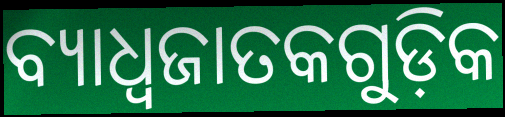
ବ୍ୟାଧ୍ଵଜାତକଗୁଡ଼ିକ